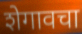
शेगावचा